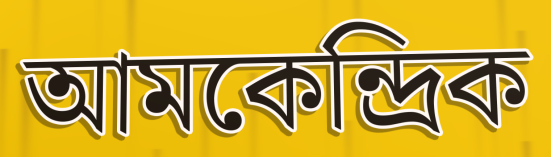
আমকেন্দ্রিক